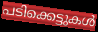
പടിക്കെട്ടുകൾ